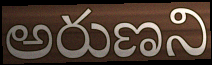
అరుణని